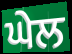
ਘੇਲ